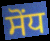
ਸੋਂਧ